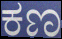
ಕಣ